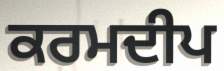
ਕਰਮਦੀਪ